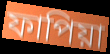
ফাপিয়া